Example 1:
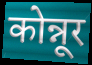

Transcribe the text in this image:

कोन्नूर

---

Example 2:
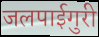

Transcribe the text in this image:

जलपाईगुरी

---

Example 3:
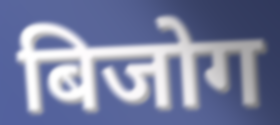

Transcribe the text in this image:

बिजोग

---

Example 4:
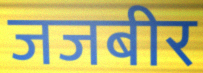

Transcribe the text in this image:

जजबीर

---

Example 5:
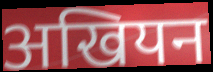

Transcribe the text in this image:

अखियन